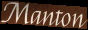
Manton